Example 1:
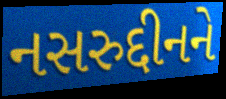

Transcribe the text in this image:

નસરુદ્દીનને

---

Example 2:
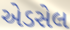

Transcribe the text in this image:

એડસેલ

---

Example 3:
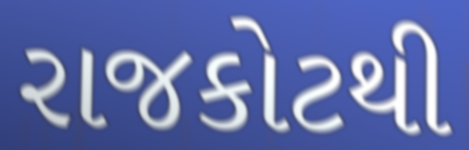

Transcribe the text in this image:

રાજકોટથી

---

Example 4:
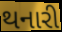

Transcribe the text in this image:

થનારી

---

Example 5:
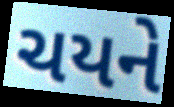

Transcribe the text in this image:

ચયને